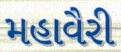
મહાવૈરી